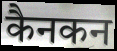
कैनकन